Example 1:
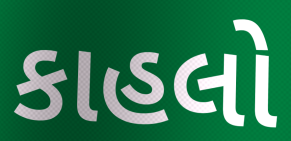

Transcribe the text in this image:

કાહલો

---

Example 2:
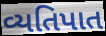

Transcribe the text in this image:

વ્યતિપાત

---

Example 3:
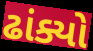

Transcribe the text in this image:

ઢાંક્યો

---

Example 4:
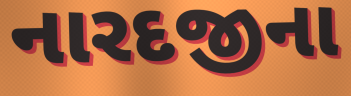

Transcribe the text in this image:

નારદજીના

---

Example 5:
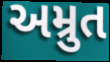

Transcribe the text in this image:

અમ્રુત